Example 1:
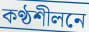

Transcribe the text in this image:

কণ্ঠশীলনে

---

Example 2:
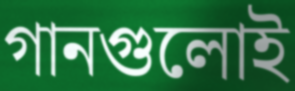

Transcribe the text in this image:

গানগুলোই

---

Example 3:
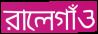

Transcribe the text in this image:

রালেগাঁও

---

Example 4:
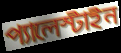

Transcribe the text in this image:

প্যালেস্টাইন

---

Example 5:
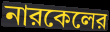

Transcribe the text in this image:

নারকেলের